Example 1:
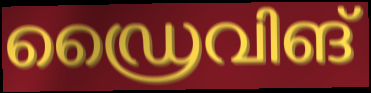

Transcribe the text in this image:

ഡ്രൈവിങ്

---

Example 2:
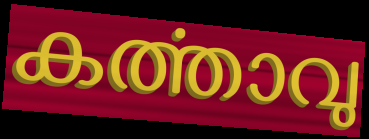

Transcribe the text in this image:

കൎത്താവു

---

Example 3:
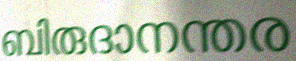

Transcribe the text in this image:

ബിരുദാനന്തര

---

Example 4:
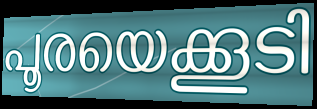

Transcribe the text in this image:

പൂരയെക്കൂടി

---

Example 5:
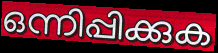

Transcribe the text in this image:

ഒന്നിപ്പിക്കുക